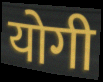
योगी